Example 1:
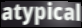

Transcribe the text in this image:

atypical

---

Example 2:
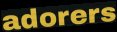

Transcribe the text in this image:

adorers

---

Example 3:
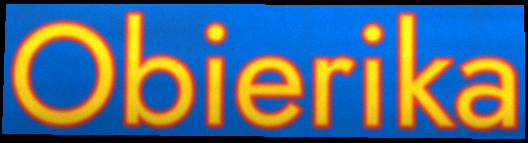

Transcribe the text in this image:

Obierika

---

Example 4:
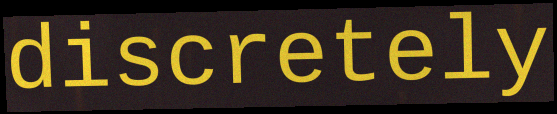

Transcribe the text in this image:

discretely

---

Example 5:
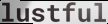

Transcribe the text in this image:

lustful